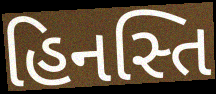
હિનસ્તિ